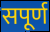
सपूर्ण